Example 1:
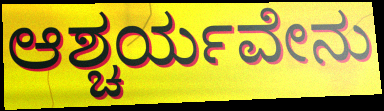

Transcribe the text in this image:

ಆಶ್ಚರ್ಯವೇನು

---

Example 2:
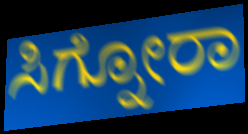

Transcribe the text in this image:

ಸಿಗ್ನೋರಾ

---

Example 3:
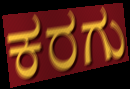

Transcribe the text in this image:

ಕರಗು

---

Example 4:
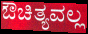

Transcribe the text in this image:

ಔಚಿತ್ಯವಲ್ಲ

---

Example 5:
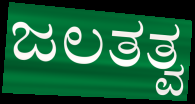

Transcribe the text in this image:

ಜಲತತ್ವ